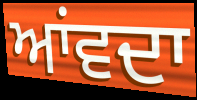
ਆਂਵਦਾ